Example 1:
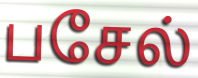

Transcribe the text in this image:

பசேல்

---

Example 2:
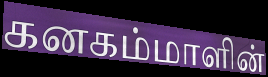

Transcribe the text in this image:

கனகம்மாளின்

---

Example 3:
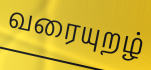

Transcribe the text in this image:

வரையுறழ்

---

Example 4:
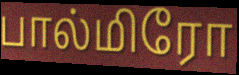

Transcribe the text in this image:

பால்மிரோ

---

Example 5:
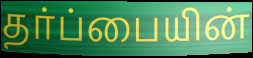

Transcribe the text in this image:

தர்ப்பையின்